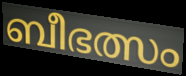
ബീഭത്സം